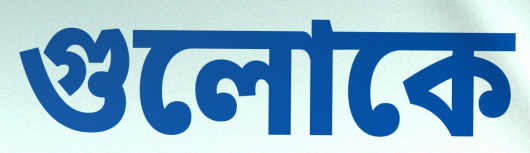
গুলোকে